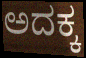
ಅದಕ್ಕ